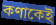
কণাকেই